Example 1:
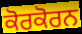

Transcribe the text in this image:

ਕੋਰਕੋਰਨ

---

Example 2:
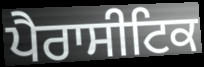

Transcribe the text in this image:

ਪੈਰਾਸੀਟਿਕ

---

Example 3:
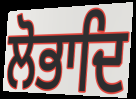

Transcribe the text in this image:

ਲੋਭਾਦਿ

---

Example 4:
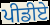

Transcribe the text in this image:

ਪੀਡੀਏ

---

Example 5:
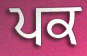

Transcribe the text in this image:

ਪਕ